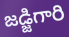
జడ్జిగారి